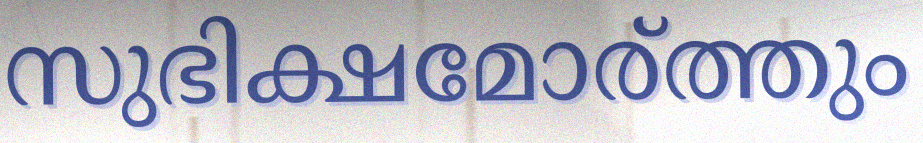
സുഭിക്ഷമോര്ത്തും